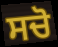
ਸਚੋ